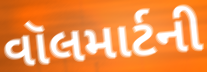
વૉલમાર્ટની